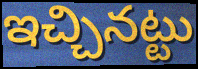
ఇచ్చినట్టు